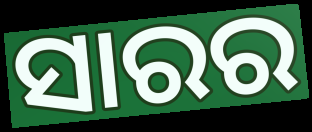
ସାରର